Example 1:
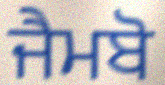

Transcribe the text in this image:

ਜੈਮਬੋ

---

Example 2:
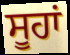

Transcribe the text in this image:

ਸੂਹਾਂ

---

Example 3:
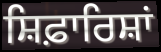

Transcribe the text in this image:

ਸ਼ਿਫ਼ਾਰਿਸ਼ਾਂ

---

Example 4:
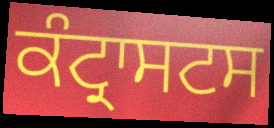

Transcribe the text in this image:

ਕੰਟ੍ਰਾਸਟਸ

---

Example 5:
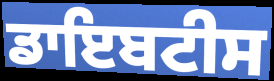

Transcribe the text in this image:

ਡਾਇਬਟੀਸ